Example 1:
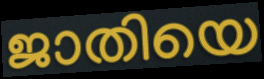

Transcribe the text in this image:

ജാതിയെ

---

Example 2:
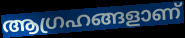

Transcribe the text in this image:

ആഗ്രഹങ്ങളാണ്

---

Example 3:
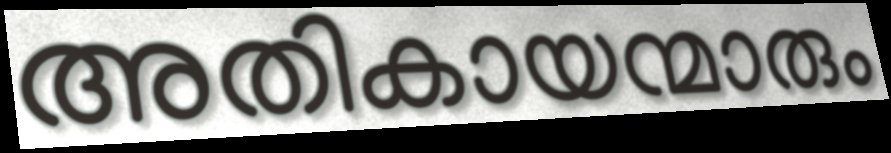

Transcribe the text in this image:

അതികായന്മാരും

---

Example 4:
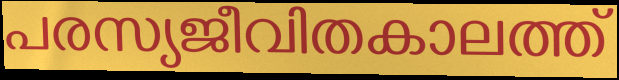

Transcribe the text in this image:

പരസ്യജീവിതകാലത്ത്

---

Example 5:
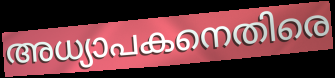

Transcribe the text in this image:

അധ്യാപകനെതിരെ